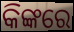
କିଙ୍କରେ